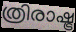
ത്രിരാഷ്ട്ര